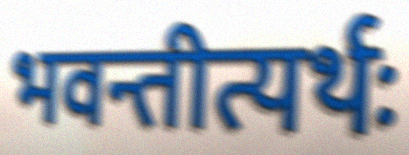
भवन्तीत्यर्थः